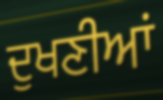
ਦੁਖਣੀਆਂ